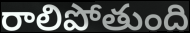
రాలిపోతుంది